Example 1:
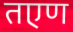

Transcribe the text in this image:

तएण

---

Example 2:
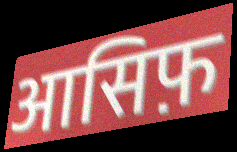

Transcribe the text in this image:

आसिफ़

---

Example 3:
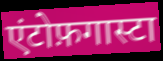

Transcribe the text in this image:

एंटोफ़गास्टा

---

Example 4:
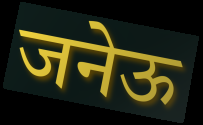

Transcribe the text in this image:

जनेऊ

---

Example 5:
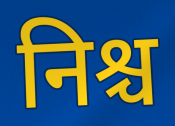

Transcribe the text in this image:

निश्च